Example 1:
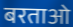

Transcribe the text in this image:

बरताओ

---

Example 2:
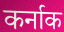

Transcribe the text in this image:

कर्नाक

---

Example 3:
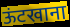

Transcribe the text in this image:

ऊंटखाना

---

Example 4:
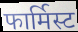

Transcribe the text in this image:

फार्मिस्ट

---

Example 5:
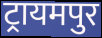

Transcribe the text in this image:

ट्रायमपुर